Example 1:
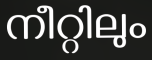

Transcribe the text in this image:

നീറ്റിലും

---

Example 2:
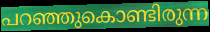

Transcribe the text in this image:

പറഞ്ഞുകൊണ്ടിരുന്ന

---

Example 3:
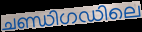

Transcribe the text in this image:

ചണ്ഡിഗഡിലെ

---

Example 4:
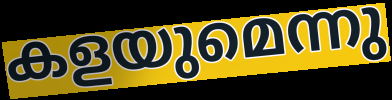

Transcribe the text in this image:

കളയുമെന്നു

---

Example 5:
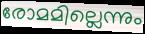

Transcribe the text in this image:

രോമമില്ലെന്നും